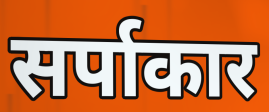
सर्पाकार